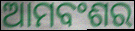
ଆମବଂଶର